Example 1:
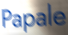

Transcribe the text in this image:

Papale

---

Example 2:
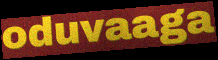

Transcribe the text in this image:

oduvaaga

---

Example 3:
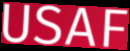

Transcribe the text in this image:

USAF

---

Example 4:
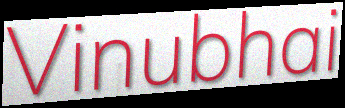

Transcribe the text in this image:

Vinubhai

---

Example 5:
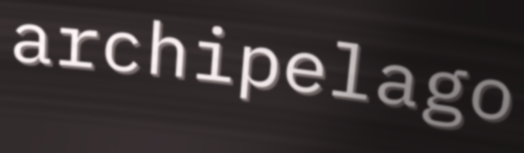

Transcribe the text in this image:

archipelago